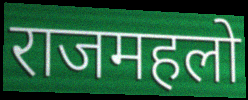
राजमहलो